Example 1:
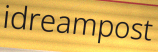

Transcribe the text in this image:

idreampost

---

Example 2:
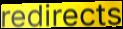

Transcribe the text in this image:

redirects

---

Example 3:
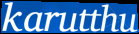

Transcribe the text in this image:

karutthu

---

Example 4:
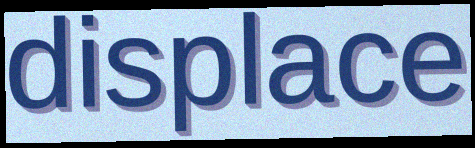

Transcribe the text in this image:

displace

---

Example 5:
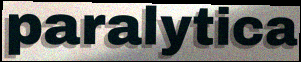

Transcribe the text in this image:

paralytica